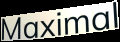
Maximal